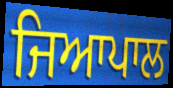
ਜਿਆਪਾਲ